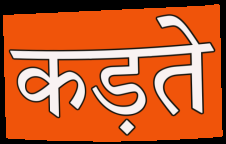
कड़ते